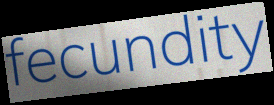
fecundity